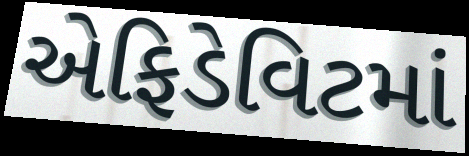
એફિડેવિટમાં